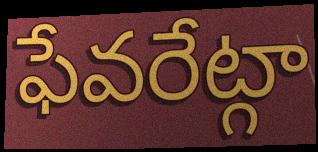
ఫేవరేట్గా